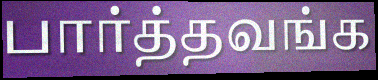
பார்த்தவங்க